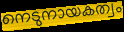
നെടുനായകത്വം